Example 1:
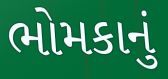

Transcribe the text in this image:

ભોમકાનું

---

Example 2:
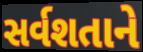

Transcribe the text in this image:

સર્વશતાને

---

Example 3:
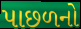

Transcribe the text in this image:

પાછળનો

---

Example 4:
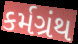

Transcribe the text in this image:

કર્મગ્રંથ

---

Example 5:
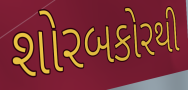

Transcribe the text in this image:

શોરબકોરથી